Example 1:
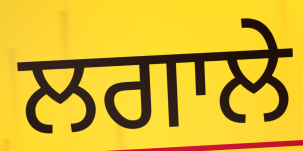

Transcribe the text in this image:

ਲਗਾਲੇ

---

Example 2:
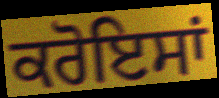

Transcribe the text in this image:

ਕਰੋਇਸਾਂ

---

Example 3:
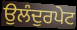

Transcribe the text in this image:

ਉਲੰਦੁਰਪੇਟ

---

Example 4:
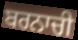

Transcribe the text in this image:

ਬਰਨਾਚੀ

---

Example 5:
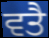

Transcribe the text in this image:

ਵਤੈ